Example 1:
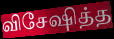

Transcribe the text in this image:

விசேஷித்த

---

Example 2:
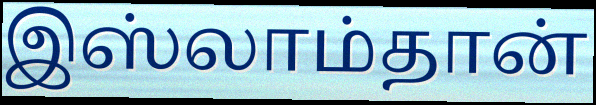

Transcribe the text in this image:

இஸ்லாம்தான்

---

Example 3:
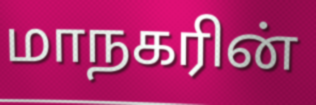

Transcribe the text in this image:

மாநகரின்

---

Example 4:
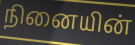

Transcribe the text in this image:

நினையின்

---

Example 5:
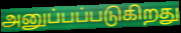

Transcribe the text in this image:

அனுப்பப்படுகிறது